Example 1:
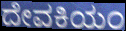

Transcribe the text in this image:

ದೇವಕಿಯಂ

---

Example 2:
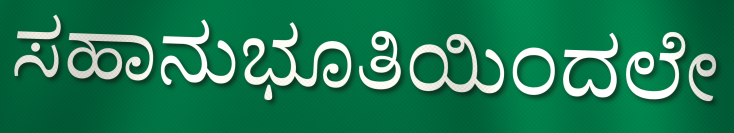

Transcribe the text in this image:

ಸಹಾನುಭೂತಿಯಿಂದಲೇ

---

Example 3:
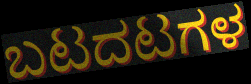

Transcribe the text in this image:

ಬಟದಟಗಳ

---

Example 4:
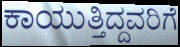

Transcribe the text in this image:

ಕಾಯುತ್ತಿದ್ದವರಿಗೆ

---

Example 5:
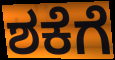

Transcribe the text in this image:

ಶಕೆಗೆ